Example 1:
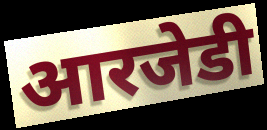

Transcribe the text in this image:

आरजेडी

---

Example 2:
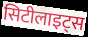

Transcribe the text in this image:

सिटीलाइट्स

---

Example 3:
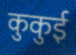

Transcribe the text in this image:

कुकुई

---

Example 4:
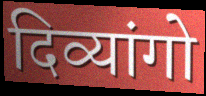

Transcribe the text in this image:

दिव्यांगो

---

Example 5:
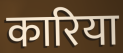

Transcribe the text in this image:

कारिया